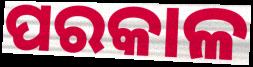
ପରକାଳ